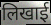
लिखाई